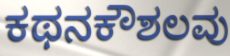
ಕಥನಕೌಶಲವು